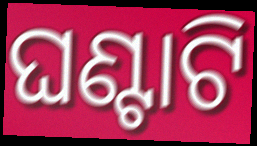
ଘଣ୍ଟାଟି